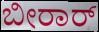
ಬೀರಾರ್